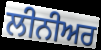
ਲੀਨੀਅਰ